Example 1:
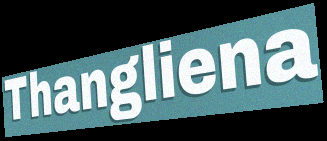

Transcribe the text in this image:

Thangliena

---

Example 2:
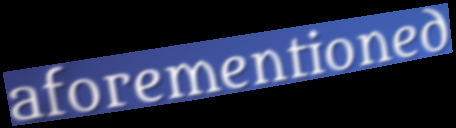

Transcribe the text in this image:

aforementioned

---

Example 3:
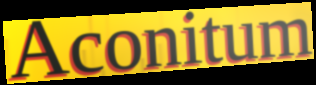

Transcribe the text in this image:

Aconitum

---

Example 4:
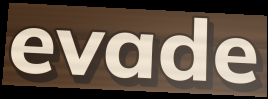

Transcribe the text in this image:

evade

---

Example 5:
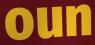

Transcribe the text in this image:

oun